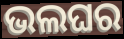
ଭଲଘର